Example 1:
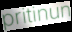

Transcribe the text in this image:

pritinun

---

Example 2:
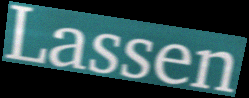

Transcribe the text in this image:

Lassen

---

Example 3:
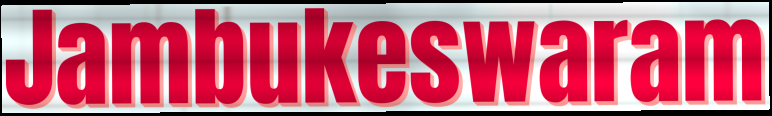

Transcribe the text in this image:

Jambukeswaram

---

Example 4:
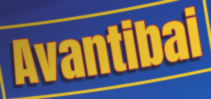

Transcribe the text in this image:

Avantibai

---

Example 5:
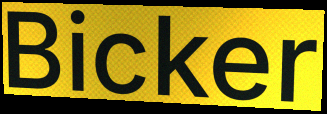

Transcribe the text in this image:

Bicker